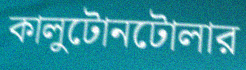
কালুটোনটোলার